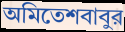
অমিতেশবাবুর